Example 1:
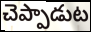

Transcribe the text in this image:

చెప్పాడుట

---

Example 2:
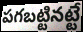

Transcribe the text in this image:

పగబట్టినట్టే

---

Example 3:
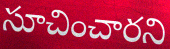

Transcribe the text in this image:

సూచించారని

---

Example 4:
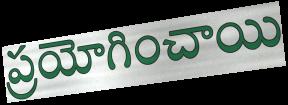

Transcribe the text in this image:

ప్రయోగించాయి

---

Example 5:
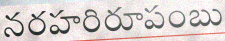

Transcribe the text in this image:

నరహరిరూపంబు